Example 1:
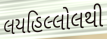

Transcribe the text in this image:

લયહિલ્લોલથી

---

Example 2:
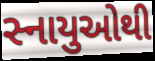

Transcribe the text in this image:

સ્નાયુઓથી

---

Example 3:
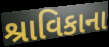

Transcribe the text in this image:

શ્રાવિકાના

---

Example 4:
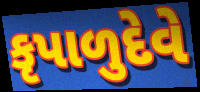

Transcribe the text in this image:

કૃપાળુદેવે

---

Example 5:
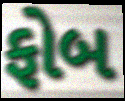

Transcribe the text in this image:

ફોબ